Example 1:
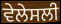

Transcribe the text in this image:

ਵੇਲੇਸਲੀ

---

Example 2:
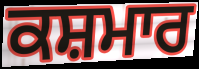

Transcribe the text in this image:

ਕਸ਼ਮਾਰ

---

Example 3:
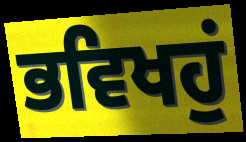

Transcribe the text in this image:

ਭਵਿਖਹੁਂ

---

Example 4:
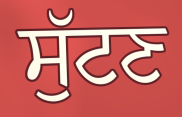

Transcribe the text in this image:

ਸੁੱਟਣ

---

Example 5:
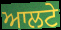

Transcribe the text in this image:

ਆਲਟੇ